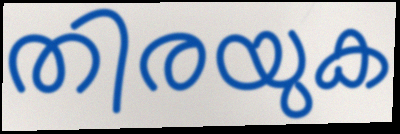
തിരയുക